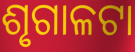
ଶୃଗାଳଟା